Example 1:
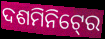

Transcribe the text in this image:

ଦଶମିନିଟ୍‍ରେ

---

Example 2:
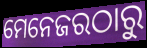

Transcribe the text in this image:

ମେନେଜରଠାରୁ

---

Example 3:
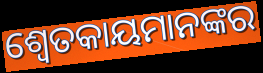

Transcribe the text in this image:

ଶ୍ବେତକାୟମାନଙ୍କର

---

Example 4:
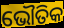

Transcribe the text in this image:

ଭୌତିକ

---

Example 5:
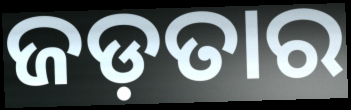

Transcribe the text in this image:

ଜଡ଼ତାର